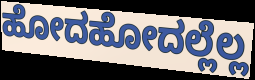
ಹೋದಹೋದಲ್ಲೆಲ್ಲ